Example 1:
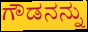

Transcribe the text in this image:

ಗೌಡನನ್ನು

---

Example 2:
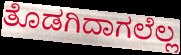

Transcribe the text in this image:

ತೊಡಗಿದಾಗಲೆಲ್ಲ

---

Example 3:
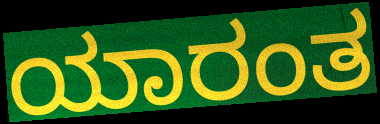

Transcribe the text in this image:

ಯಾರಂತ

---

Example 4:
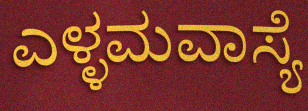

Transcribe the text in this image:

ಎಳ್ಳಮವಾಸ್ಯೆ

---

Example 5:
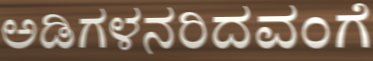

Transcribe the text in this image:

ಅಡಿಗಳನರಿದವಂಗೆ